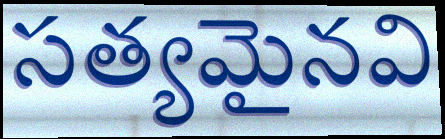
సత్యమైనవి